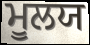
ਮੂਲਯ